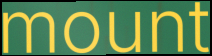
mount